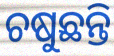
ଚଷୁଛନ୍ତି